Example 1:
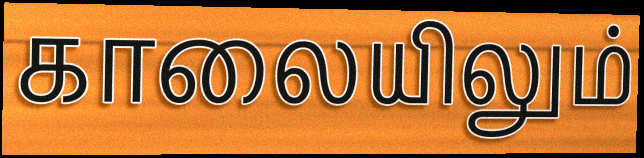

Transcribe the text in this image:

காலையிலும்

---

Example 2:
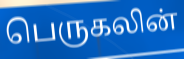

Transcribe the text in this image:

பெருகலின்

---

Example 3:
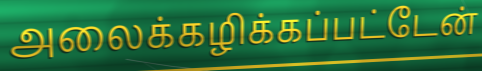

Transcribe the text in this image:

அலைக்கழிக்கப்பட்டேன்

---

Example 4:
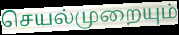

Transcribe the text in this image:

செயல்முறையும்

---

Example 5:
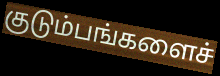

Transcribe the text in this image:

குடும்பங்களைச்